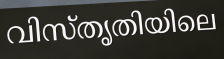
വിസ്തൃതിയിലെ